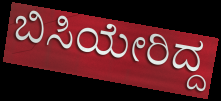
ಬಿಸಿಯೇರಿದ್ದ